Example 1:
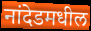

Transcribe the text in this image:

नांदेडमधील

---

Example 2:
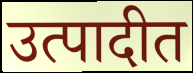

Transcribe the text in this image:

उत्पादीत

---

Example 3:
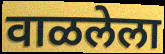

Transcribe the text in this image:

वाळलेला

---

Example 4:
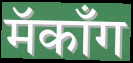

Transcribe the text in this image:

मॅकाँग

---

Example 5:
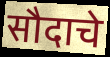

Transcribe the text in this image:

सौदाचे